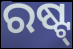
ରଷ୍ଟ୍